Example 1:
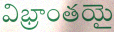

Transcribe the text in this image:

విభ్రాంతయై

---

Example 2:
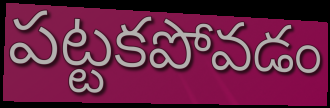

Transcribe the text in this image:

పట్టకపోవడం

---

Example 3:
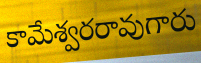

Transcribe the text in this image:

కామేశ్వరరావుగారు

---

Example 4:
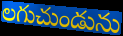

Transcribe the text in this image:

లగుచుండును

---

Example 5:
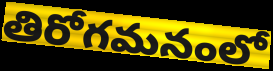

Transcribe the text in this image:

తిరోగమనంలో